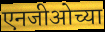
एनजीओच्या